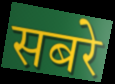
सबरे